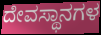
ದೇವಸ್ಥಾನಗಳ